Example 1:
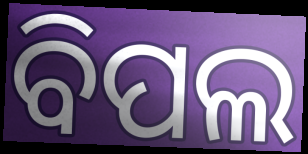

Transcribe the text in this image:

ବିପଲ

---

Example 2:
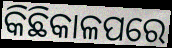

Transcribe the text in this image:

କିଛିକାଳପରେ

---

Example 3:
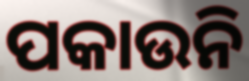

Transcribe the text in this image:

ପକାଉନି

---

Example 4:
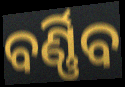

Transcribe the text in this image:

ବର୍ଣ୍ଣିବ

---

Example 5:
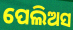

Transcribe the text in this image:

ପେଲିଅସ